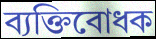
ব্যক্তিবোধক